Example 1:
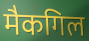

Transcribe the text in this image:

मैकगिल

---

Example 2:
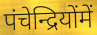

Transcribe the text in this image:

पंचेन्द्रियोंमें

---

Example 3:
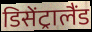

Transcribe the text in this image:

डिसेंट्रालैंड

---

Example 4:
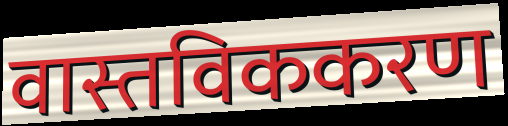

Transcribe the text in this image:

वास्तविककरण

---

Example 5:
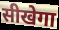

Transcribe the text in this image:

सीखेगा